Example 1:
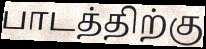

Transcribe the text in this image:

பாடத்திற்கு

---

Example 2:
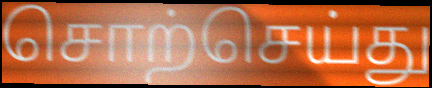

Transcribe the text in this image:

சொற்செய்து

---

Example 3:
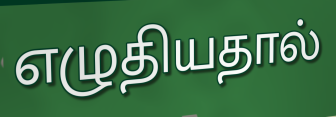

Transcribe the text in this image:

எழுதியதால்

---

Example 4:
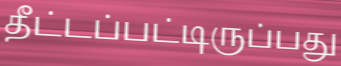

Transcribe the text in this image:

தீட்டப்பட்டிருப்பது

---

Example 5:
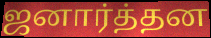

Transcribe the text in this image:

ஜனார்த்தன